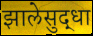
झालेसुद्धा